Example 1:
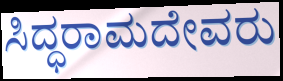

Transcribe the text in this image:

ಸಿದ್ಧರಾಮದೇವರು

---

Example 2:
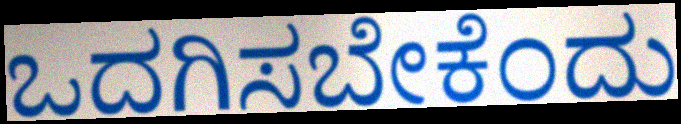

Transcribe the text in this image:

ಒದಗಿಸಬೇಕೆಂದು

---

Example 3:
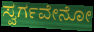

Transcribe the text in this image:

ಸ್ವರ್ಗವೇನೋ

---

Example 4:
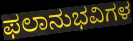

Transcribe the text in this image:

ಫಲಾನುಭವಿಗಳ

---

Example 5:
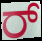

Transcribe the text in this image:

ರ್